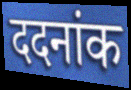
ददनांक